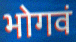
भोगवं